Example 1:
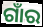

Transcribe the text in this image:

ଗାଁର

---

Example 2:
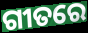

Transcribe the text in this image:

ଗୀତରେ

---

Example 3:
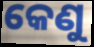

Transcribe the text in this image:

କେଣୁ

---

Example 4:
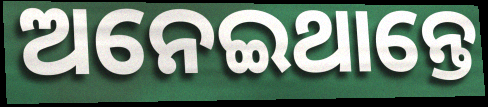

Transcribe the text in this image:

ଅନେଇଥାନ୍ତେ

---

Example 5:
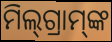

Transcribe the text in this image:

ମିଲ୍‌ଗ୍ରାମ୍‌ଙ୍କ